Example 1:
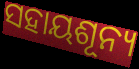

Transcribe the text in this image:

ସହାୟଶୂନ୍ୟ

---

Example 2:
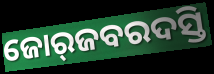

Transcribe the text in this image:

ଜୋର୍‍ଜବରଦସ୍ତି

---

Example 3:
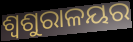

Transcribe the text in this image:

ଶ୍ୱଶୁରାଳୟର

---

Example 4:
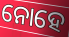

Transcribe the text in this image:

ନୋହେ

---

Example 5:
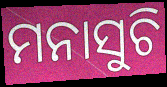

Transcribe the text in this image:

ମନାସୁଚି